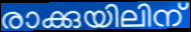
രാക്കുയിലിന്